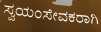
ಸ್ವಯಂಸೇವಕರಾಗಿ